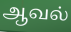
ஆவல்